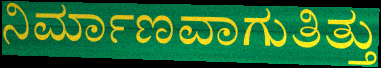
ನಿರ್ಮಾಣವಾಗುತಿತ್ತು